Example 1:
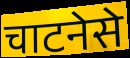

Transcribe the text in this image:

चाटनेसे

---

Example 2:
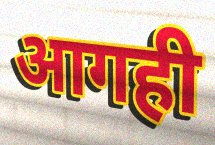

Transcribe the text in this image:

आगही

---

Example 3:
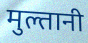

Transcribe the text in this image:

मुल्‍तानी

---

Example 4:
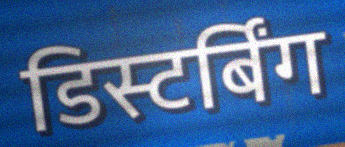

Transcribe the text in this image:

डिस्टर्बिंग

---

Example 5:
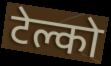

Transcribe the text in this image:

टेल्को